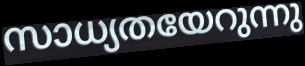
സാധ്യതയേറുന്നു